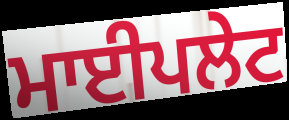
ਮਾਈਪਲੇਟ